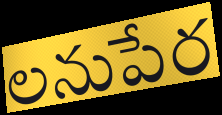
లనుపేర